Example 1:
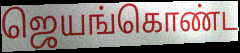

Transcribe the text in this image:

ஜெயங்கொண்ட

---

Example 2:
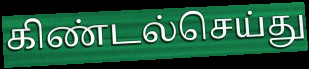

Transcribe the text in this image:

கிண்டல்செய்து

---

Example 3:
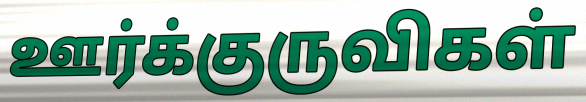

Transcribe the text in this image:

ஊர்க்குருவிகள்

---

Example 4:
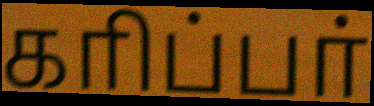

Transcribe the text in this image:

கரிப்பர்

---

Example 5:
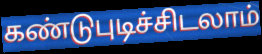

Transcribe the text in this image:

கண்டுபுடிச்சிடலாம்